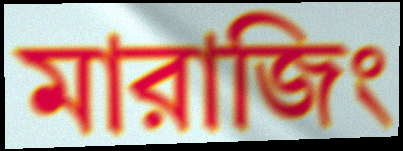
মারাজিং